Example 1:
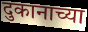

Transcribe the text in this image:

दुकानाच्या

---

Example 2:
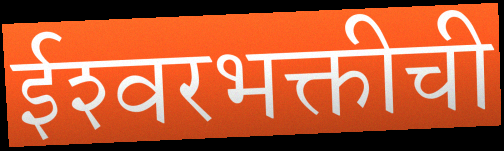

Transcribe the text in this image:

ईश्वरभक्तीची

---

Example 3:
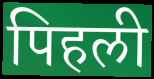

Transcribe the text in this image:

पिहली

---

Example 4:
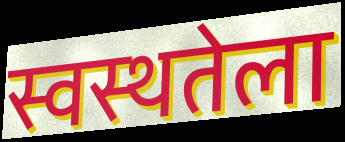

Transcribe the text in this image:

स्वस्थतेला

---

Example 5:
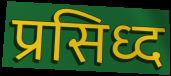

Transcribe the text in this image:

प्रसिध्द